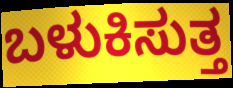
ಬಳುಕಿಸುತ್ತ